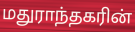
மதுராந்தகரின்